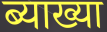
ब्याख्या